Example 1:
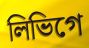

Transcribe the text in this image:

লিভিগে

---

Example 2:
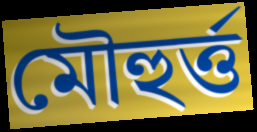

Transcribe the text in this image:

মৌহুৰ্ত্ত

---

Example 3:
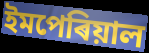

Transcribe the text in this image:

ইমপেৰিয়াল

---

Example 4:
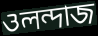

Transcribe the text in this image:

ওলন্দাজ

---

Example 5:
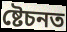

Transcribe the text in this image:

ষ্টেচনত